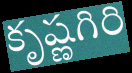
కృష్ణగిరి